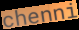
chenni